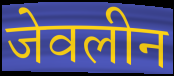
जेवलीन